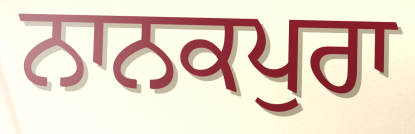
ਨਾਨਕਪੁਰਾ